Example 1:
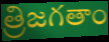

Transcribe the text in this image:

త్రిజగతాం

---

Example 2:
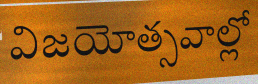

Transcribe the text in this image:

విజయోత్సవాల్లో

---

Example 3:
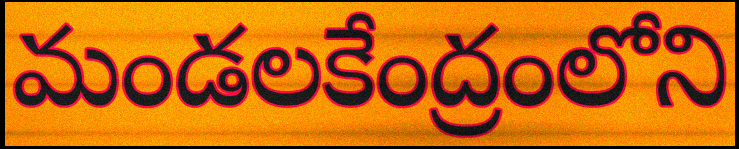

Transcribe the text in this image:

మండలకేంద్రంలోని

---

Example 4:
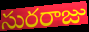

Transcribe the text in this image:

సురరాజు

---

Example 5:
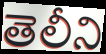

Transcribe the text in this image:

తెలీని